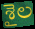
శైల